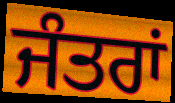
ਜੰਤਰਾਂ